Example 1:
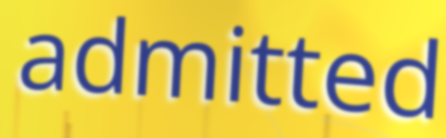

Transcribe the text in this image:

admitted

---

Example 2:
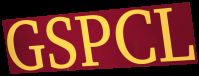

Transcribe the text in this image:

GSPCL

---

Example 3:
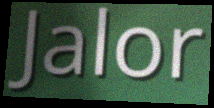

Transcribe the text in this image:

Jalor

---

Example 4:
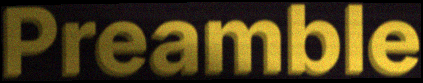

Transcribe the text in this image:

Preamble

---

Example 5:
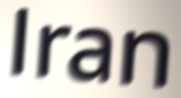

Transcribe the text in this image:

Iran